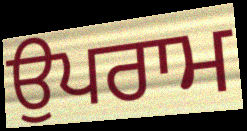
ਉਪਰਾਮ